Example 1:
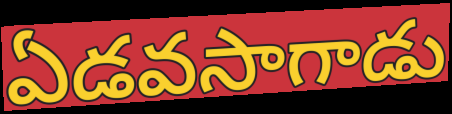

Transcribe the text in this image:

ఏడవసాగాడు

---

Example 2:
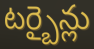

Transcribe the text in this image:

టర్బైన్లు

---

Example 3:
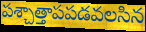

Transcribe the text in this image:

పశ్చాత్తాపపడవలసిన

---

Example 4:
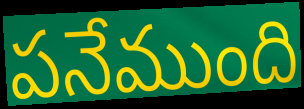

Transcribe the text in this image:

పనేముంది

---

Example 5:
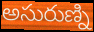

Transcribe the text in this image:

అసురుణ్ని